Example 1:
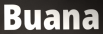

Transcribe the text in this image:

Buana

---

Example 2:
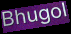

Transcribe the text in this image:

Bhugol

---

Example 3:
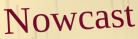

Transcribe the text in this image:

Nowcast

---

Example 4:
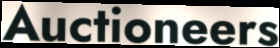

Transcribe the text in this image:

Auctioneers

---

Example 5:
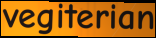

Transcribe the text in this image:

vegiterian